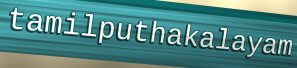
tamilputhakalayam